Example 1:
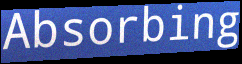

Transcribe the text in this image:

Absorbing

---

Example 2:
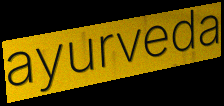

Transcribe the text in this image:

ayurveda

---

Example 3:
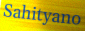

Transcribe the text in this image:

Sahityano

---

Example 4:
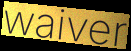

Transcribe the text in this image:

waiver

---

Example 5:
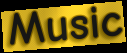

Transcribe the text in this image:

Music